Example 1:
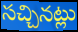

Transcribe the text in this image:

సచ్చినట్లు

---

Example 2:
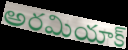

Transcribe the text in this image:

అరమియాక్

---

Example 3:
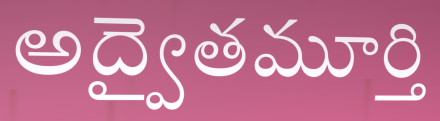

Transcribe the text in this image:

అద్వైతమూర్తి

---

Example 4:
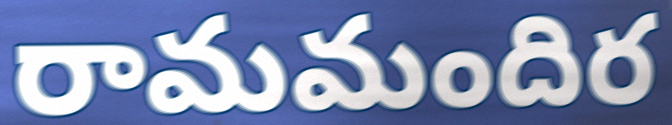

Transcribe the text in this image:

రామమందిర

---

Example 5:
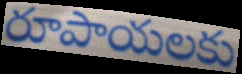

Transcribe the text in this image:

రూపాయలకు